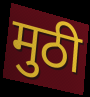
मुठी